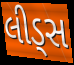
લીડ્સ